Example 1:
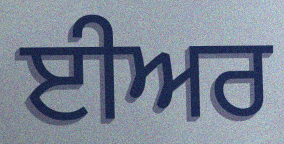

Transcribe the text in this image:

ਈਅਰ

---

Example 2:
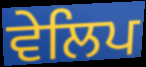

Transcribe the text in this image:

ਵੇਲਿਪ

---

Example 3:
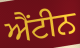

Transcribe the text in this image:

ਐਂਟੀਨ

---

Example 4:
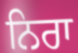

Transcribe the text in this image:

ਨਿਰਾ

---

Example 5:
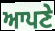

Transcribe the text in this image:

ਆਪਣੇ